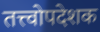
तत्त्वोपदेशक